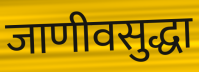
जाणीवसुद्धा